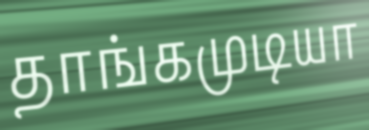
தாங்கமுடியா